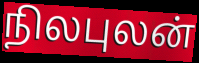
நிலபுலன்